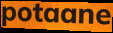
potaane